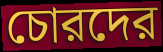
চোরদের